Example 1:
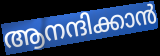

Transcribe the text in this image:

ആനന്ദിക്കാൻ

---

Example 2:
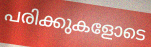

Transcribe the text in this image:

പരിക്കുകളോടെ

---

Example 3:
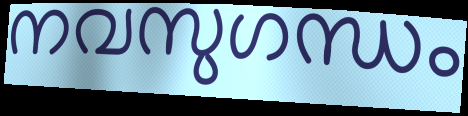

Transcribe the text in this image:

നവസുഗന്ധം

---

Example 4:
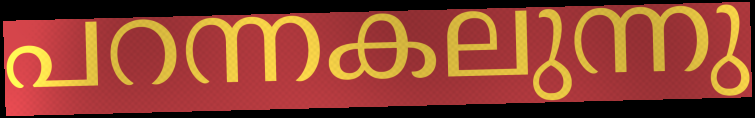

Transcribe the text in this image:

പറന്നകലുന്നു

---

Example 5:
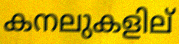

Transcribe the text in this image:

കനലുകളില്